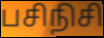
பசிநிசி